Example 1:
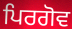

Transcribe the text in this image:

ਪਿਰਗੋਵ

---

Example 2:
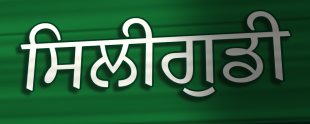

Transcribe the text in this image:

ਸਿਲੀਗੁਡੀ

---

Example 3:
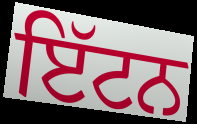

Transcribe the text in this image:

ਇੱਟਨ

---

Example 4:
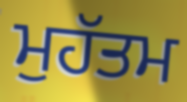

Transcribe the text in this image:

ਮੁਹੱਤਮ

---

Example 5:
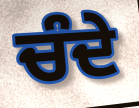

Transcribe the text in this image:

ਚੰਦੇ